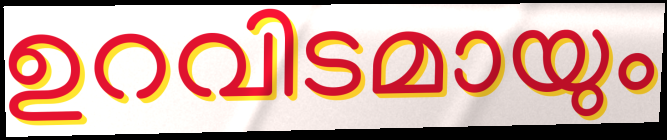
ഉറവിടമായും